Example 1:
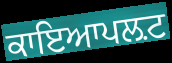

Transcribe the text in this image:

ਕਾਇਆਪਲ਼ਟ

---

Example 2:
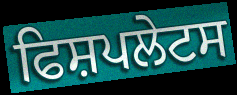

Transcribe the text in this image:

ਫਿਸ਼ਪਲੇਟਸ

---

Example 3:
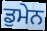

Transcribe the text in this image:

ਡੁਮੇਨ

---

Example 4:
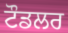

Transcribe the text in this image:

ਟੌਡਲਰ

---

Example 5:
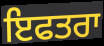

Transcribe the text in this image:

ਇਫਤਰਾ